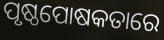
ପୃଷ୍ଠପୋଷକତାରେ